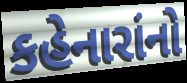
કહેનારાંનો